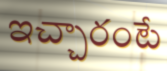
ఇచ్చారంటే